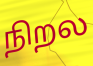
நிறல